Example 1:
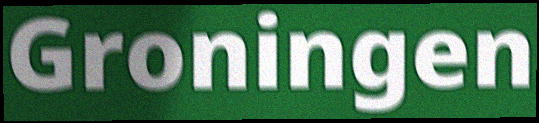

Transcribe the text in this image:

Groningen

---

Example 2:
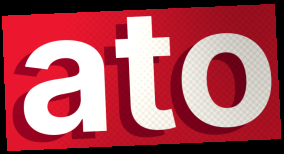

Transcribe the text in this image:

ato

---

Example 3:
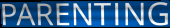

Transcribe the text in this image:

PARENTING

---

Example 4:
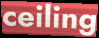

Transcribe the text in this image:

ceiling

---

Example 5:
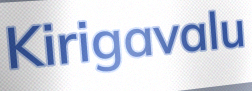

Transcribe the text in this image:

Kirigavalu